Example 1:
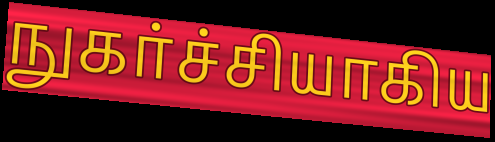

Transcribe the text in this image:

நுகர்ச்சியாகிய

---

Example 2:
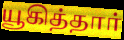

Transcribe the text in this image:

யூகித்தார்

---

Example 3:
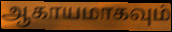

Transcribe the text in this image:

ஆகாயமாகவும்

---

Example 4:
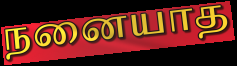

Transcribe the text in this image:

நனையாத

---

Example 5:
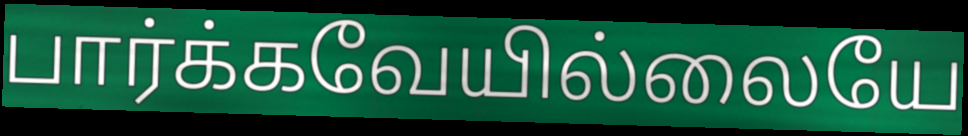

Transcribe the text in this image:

பார்க்கவேயில்லையே